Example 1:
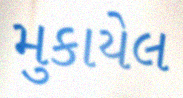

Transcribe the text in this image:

મુકાયેલ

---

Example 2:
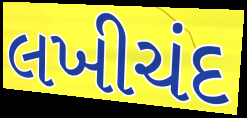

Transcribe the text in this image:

લખીચંદ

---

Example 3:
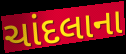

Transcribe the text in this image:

ચાંદલાના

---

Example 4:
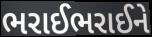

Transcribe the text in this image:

ભરાઈભરાઈને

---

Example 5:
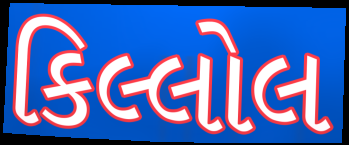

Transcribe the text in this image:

કિલ્લોલ